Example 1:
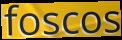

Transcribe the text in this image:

foscos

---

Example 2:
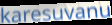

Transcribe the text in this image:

karesuvanu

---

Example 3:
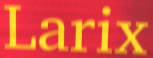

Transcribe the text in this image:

Larix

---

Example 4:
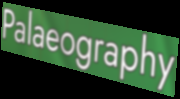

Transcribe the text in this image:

Palaeography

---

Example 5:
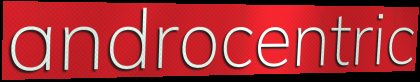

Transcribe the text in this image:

androcentric